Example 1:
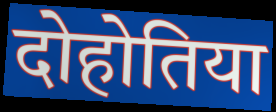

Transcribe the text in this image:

दोहोतिया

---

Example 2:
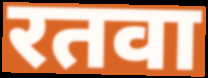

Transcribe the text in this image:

रतवा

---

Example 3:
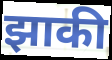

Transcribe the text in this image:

झाकी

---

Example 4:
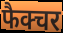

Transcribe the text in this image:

फैक्चर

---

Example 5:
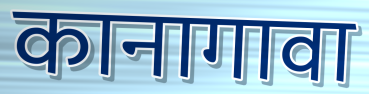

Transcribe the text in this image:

कानागावा